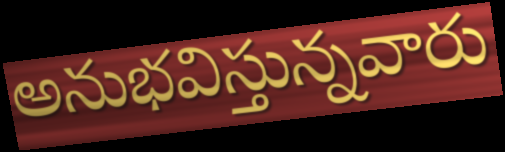
అనుభవిస్తున్నవారు